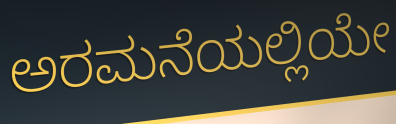
ಅರಮನೆಯಲ್ಲಿಯೇ